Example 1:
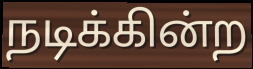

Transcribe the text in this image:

நடிக்கின்ற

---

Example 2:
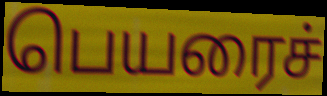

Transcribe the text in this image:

பெயரைச்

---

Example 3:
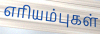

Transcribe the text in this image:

எரியம்புகள்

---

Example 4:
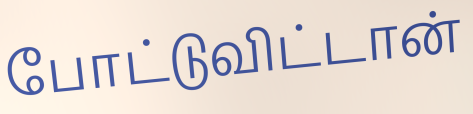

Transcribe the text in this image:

போட்டுவிட்டான்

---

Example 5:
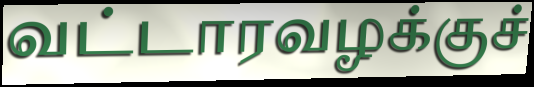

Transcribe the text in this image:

வட்டாரவழக்குச்